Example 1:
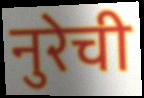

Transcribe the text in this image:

नुरेची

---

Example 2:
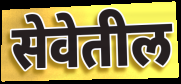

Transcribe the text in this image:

सेवेतील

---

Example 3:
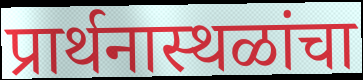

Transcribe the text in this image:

प्रार्थनास्थळांचा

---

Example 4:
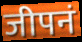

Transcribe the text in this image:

जीपनं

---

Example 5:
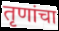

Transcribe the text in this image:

तृणांचा